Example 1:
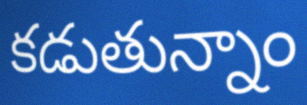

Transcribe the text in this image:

కడుతున్నాం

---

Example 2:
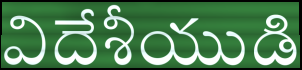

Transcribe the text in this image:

విదేశీయుడి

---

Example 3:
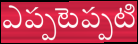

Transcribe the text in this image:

ఎప్పటెప్పటి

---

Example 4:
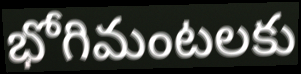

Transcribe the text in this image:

భోగిమంటలకు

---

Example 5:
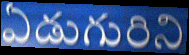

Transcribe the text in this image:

ఏడుగురిని